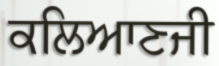
ਕਲਿਆਣਜੀ